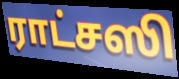
ராட்சஸி